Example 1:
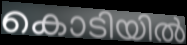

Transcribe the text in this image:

കൊടിയിൽ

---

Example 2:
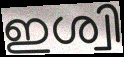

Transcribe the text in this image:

ഇശ്വി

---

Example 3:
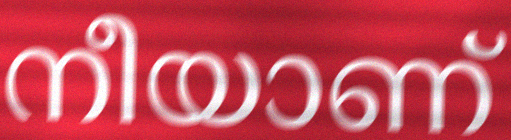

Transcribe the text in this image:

നീയാണ്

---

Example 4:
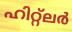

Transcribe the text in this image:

ഹിറ്റ്ലർ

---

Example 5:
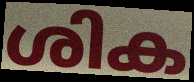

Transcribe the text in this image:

ശിക